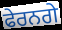
ਫੇਰਨਗੇ